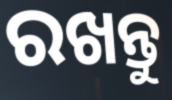
ରଖନ୍ତୁ